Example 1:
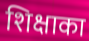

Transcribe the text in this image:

शिक्षाका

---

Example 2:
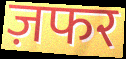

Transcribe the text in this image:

ज़फर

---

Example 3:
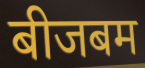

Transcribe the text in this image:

बीजबम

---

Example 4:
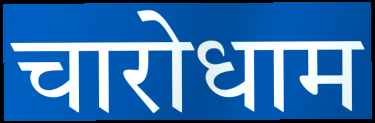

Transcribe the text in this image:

चारोधाम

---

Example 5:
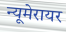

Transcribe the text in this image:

न्यूमेरायर